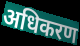
अधिकरण